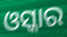
ଓସ୍କାର